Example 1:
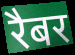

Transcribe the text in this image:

रैबर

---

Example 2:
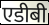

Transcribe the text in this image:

एडीबी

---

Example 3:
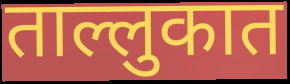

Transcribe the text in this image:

ताल्लुकात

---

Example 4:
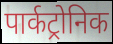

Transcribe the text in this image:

पार्कट्रोनिक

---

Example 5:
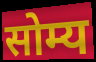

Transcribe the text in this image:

सोम्य